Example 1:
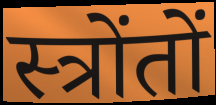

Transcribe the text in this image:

स्त्रोंतों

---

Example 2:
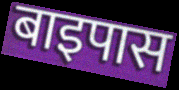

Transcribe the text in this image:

बाइपास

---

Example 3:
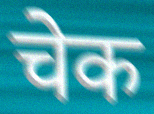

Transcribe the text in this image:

चेक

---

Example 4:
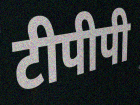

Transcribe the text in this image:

टीपीपी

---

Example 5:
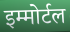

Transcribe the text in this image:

इम्मोर्टल